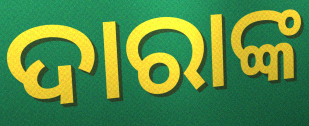
ଦାରାଙ୍କ